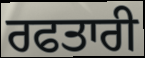
ਰਫਤਾਰੀ